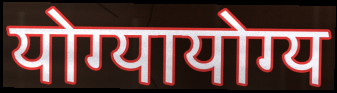
योग्यायोग्य